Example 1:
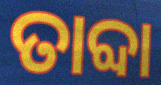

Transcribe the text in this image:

ତାବ୍ଦା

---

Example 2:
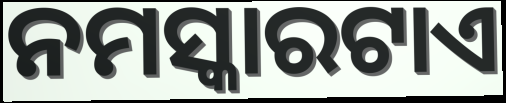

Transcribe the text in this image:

ନମସ୍କାରଟାଏ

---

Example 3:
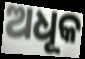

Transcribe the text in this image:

ଅଧୂକ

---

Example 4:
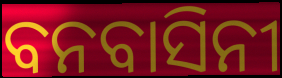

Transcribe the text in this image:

ବନବାସିନୀ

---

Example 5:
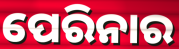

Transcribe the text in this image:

ପେରିନାର